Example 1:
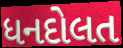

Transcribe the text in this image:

ધનદોલત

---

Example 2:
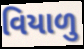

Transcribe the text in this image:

વિયાળુ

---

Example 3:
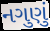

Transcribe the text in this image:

નગુણું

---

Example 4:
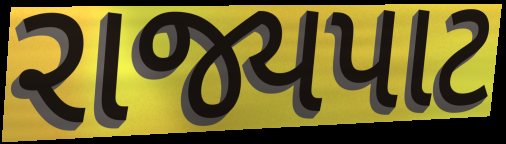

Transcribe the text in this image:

રાજ્યપાટ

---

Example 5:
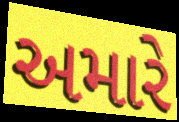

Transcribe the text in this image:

અમારે